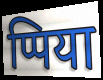
प्पिया